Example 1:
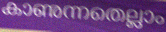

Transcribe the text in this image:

കാണുന്നതെല്ലാം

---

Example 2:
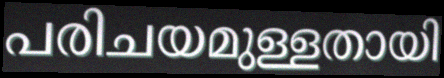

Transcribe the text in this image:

പരിചയമുള്ളതായി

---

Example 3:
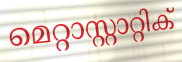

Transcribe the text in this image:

മെറ്റാസ്റ്റാറ്റിക്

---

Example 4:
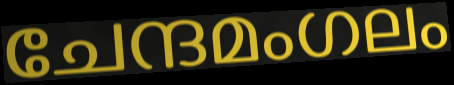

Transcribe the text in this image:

ചേന്ദമംഗലം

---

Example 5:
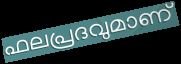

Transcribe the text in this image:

ഫലപ്രദവുമാണ്